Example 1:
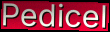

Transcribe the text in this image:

Pedicel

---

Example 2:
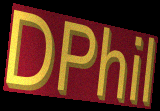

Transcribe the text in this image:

DPhil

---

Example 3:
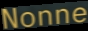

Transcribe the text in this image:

Nonne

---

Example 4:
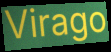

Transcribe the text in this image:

Virago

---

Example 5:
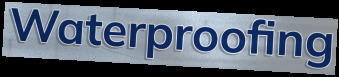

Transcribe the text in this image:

Waterproofing